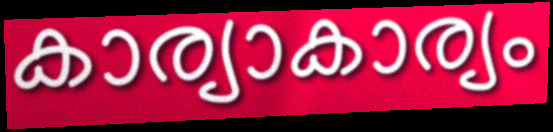
കാര്യാകാര്യം